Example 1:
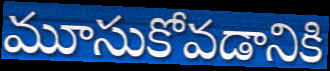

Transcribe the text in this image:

మూసుకోవడానికి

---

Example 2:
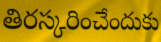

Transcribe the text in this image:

తిరస్కరించేందుకు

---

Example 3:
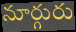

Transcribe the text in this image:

నూర్గురు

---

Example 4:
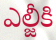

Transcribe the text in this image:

ఎల్జీకి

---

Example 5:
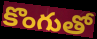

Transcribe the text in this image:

కొంగుతో